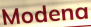
Modena